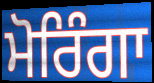
ਮੋਰਿੰਗਾ